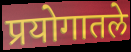
प्रयोगातले